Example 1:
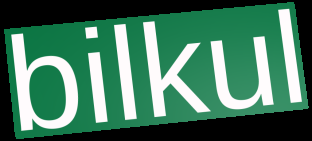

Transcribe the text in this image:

bilkul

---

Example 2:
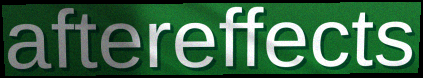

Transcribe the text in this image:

aftereffects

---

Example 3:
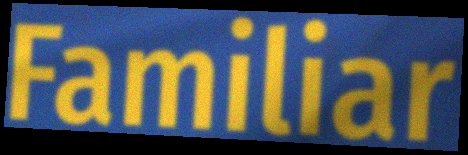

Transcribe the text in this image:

Familiar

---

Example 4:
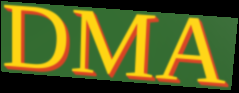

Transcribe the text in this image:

DMA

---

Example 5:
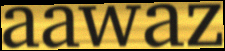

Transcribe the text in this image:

aawaz